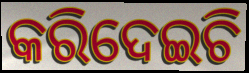
କରିଦେଇଚି